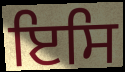
ਇਸਿ